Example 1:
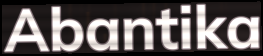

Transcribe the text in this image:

Abantika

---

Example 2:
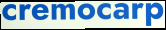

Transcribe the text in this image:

cremocarp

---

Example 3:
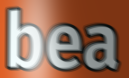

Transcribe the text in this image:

bea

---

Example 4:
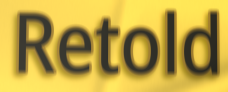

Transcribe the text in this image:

Retold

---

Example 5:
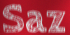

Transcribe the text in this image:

Saz